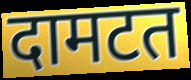
दामटत